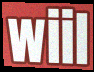
wiil